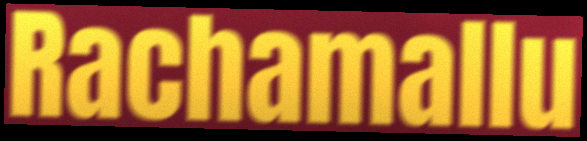
Rachamallu